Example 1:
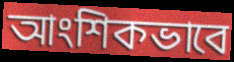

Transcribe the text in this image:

আংশিকভাবে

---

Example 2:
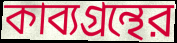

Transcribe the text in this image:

কাব্যগ্রন্থের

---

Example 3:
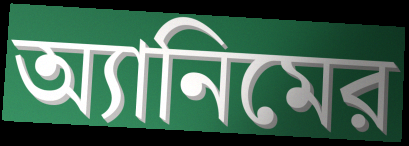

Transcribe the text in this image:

অ্যানিমের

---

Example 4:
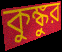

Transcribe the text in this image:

কুঙ্কুর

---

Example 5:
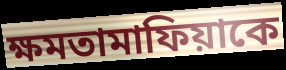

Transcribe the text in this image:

ক্ষমতামাফিয়াকে